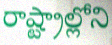
రాష్ట్రాల్లోని